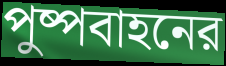
পুষ্পবাহনের